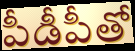
పీడీపీతో